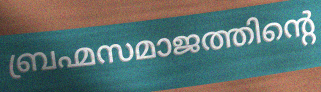
ബ്രഹ്മസമാജത്തിന്റെ